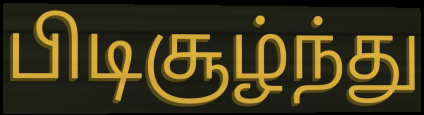
பிடிசூழ்ந்து